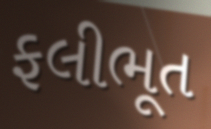
ફલીભૂત